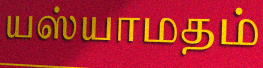
யஸ்யாமதம்